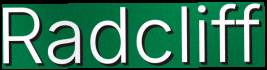
Radcliff